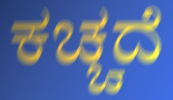
ಕಚ್ಚದೆ